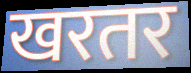
खरतर